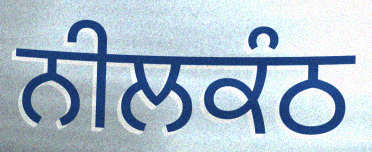
ਨੀਲਕੰਠ